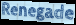
Renegade